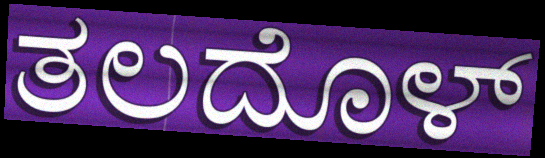
ತಲದೊಳ್